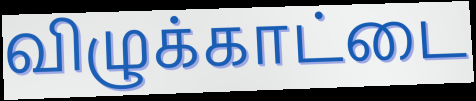
விழுக்காட்டை